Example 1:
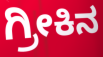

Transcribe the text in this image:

ಗ್ರೀಕಿನ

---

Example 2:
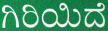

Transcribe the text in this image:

ಗಿರಿಯಿದೆ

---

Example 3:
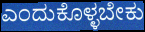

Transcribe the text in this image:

ಎಂದುಕೊಳ್ಳಬೇಕು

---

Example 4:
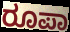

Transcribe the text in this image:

ರೂಪಾ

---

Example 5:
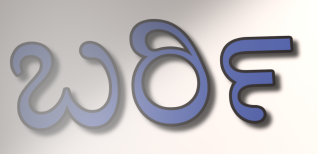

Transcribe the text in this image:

ಬರ್ರಿ